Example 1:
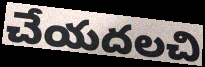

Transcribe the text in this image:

చేయదలచి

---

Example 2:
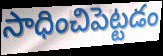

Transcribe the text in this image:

సాధించిపెట్టడం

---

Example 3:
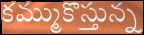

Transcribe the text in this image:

కమ్ముకొస్తున్న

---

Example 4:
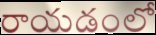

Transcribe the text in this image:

రాయడంలో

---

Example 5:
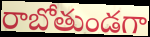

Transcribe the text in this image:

రాబోతుండగా